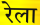
रेला